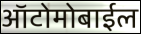
ऑटोमोबाईल